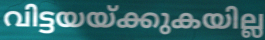
വിട്ടയയ്ക്കുകയില്ല